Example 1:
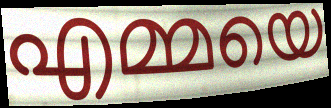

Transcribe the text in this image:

എമ്മയെ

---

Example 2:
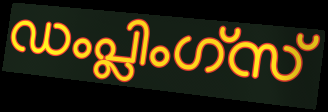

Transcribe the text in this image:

ഡംപ്ലിംഗ്സ്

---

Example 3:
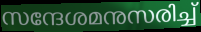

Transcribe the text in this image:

സന്ദേശമനുസരിച്ച്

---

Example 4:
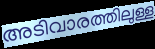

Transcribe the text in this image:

അടിവാരത്തിലുള്ള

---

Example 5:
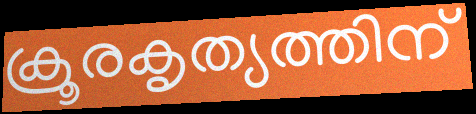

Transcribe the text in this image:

ക്രൂരകൃത്യത്തിന്